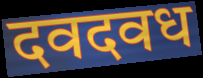
दवदवध